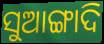
ସୁଆଙ୍ଗାଦି